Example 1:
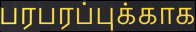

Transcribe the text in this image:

பரபரப்புக்காக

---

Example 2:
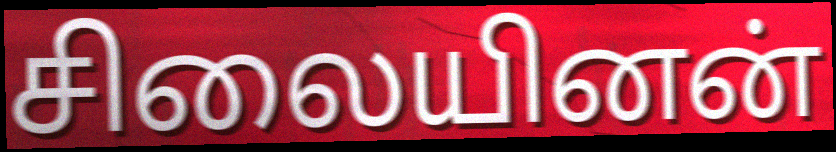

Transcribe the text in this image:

சிலையினன்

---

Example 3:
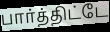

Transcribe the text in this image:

பார்த்திட்டே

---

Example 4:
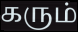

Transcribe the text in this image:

கரும்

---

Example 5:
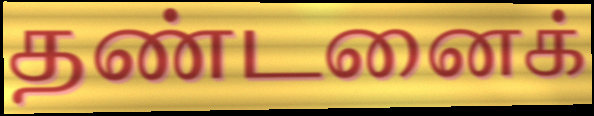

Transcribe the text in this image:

தண்டனைக்